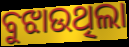
ବୁଝାଉଥିଲା